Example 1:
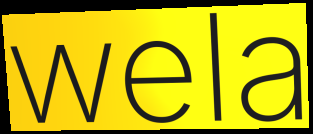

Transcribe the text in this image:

wela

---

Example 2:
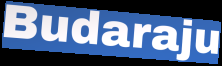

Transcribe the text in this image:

Budaraju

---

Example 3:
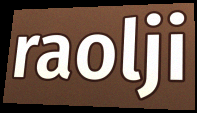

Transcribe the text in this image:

raolji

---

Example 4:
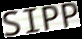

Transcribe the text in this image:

SIPP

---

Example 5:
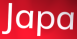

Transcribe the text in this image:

Japa